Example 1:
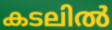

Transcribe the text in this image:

കടലിൽ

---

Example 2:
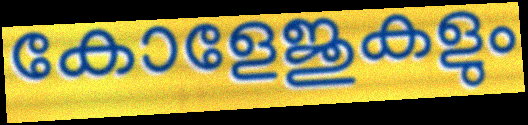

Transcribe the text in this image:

കോളേജുകളും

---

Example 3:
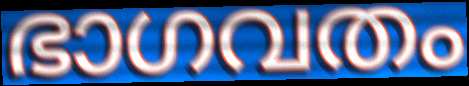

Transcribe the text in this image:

ഭാഗവതം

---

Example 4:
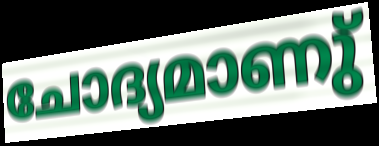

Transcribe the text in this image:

ചോദ്യമാണു്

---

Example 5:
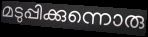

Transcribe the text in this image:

മടുപ്പിക്കുന്നൊരു